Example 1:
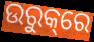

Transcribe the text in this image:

ଉରୁକ୍‌ରେ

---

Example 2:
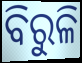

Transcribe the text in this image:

ବିରୁଳି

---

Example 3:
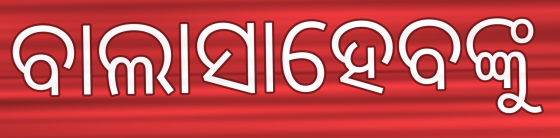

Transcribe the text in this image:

ବାଲାସାହେବଙ୍କୁ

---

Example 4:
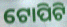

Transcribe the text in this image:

ଟୋପିଟି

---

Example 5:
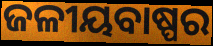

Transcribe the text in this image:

ଜଳୀୟବାଷ୍ପର